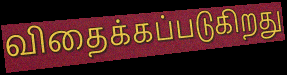
விதைக்கப்படுகிறது